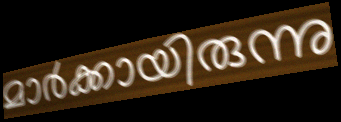
മാർക്കായിരുന്നു